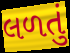
લળતું